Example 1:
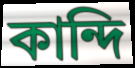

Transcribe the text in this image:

কান্দি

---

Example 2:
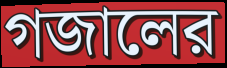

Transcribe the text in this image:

গজালের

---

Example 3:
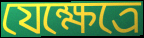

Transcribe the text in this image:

যেক্ষেত্রে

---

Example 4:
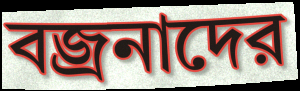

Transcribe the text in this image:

বজ্রনাদের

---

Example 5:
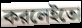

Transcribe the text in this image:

করলেইতো